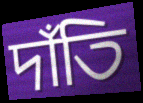
দাঁতি